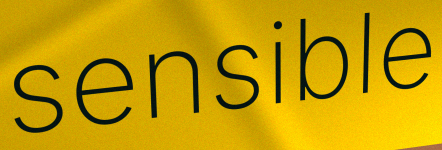
sensible